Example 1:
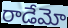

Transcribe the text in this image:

రాడేమో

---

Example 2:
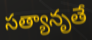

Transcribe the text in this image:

సత్యానృతే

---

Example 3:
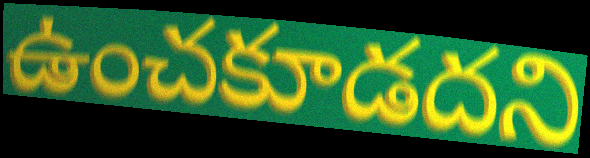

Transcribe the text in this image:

ఉంచకూడదని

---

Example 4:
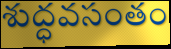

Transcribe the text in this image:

శుద్ధవసంతం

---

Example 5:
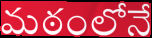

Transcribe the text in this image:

మఠంలోనే